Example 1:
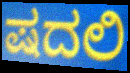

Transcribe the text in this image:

ಷದಲಿ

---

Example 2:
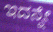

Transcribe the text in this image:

ಇದನ್ನೇ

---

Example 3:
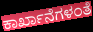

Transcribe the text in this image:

ಕಾರ್ಖಾನೆಗಳಂತೆ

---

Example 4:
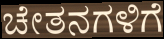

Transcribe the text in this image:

ಚೇತನಗಳಿಗೆ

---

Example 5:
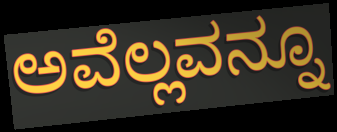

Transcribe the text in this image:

ಅವೆಲ್ಲವನ್ನೂ